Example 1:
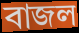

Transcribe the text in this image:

বাজল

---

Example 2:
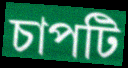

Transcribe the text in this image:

চাপটি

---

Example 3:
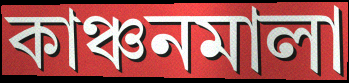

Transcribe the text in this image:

কাঞ্চনমালা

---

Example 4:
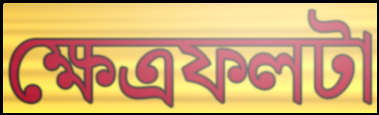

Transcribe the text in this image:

ক্ষেত্রফলটা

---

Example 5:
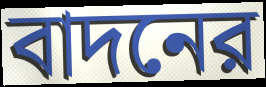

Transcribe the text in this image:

বাদনের